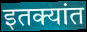
इतक्यांत